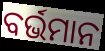
ବର୍ଭମାନ